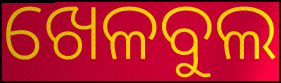
ଖେଳବୁଲ